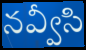
నవ్వీసి